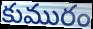
కుమురం